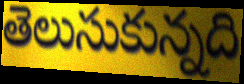
తెలుసుకున్నది